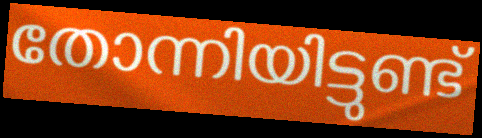
തോന്നിയിട്ടുണ്ട്